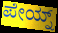
ಪೇಯ್ನ್